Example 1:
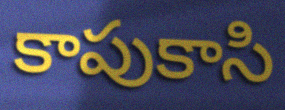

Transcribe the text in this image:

కాపుకాసి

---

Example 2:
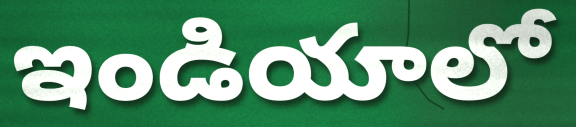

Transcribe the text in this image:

ఇండియాలో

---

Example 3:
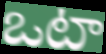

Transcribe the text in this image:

ఒటా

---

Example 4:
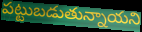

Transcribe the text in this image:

పట్టుబడుతున్నాయని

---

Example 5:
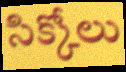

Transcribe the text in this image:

సిక్కోలు